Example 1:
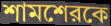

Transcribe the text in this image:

শামশেরকে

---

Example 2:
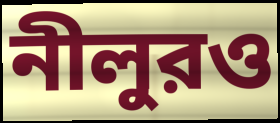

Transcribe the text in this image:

নীলুরও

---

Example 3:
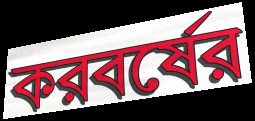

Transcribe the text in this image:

করবর্ষের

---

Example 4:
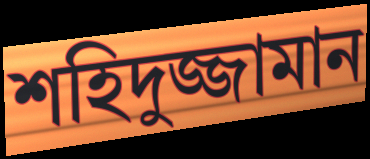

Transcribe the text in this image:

শহিদুজ্জামান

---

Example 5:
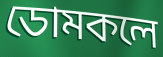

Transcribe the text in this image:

ডোমকলে